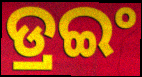
ଡ୍ରଇଂ